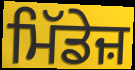
ਮਿੱਡੇਜ਼